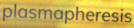
plasmapheresis